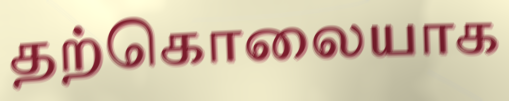
தற்கொலையாக